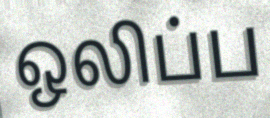
ஒலிப்ப